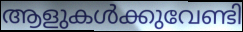
ആളുകൾക്കുവേണ്ടി